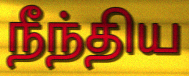
நீந்திய